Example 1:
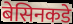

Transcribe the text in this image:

बेसिनकडे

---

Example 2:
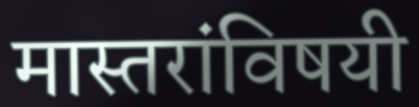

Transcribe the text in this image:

मास्तरांविषयी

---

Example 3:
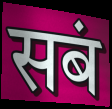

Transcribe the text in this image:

सबं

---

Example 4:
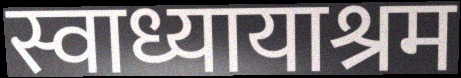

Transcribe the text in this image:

स्वाध्यायाश्रम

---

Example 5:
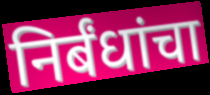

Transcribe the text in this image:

निर्बंधांचा